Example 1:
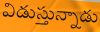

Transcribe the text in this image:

విడుస్తున్నాడు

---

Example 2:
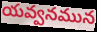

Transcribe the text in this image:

యవ్వనమున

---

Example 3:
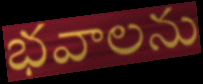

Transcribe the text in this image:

భవాలను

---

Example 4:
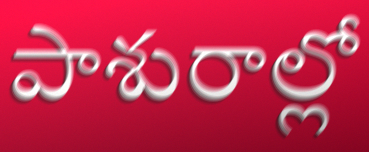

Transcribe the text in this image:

పాశురాల్లో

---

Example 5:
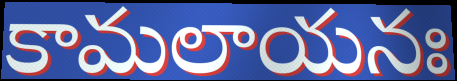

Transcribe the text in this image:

కామలాయనః